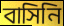
বাসিনি